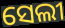
ସେଲୀ